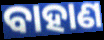
ବାହାଣ